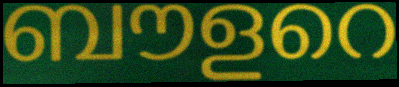
ബൗളറെ